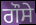
ਗੌਸੇ